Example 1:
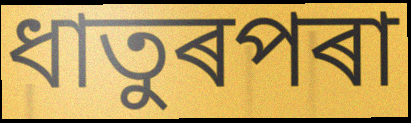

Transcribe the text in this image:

ধাতুৰপৰা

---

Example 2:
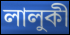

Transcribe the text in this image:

লালুকী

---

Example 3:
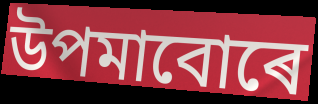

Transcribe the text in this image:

উপমাবোৰে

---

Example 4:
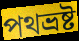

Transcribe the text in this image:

পথভ্ৰষ্ট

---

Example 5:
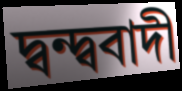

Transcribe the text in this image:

দ্বন্দ্ববাদী